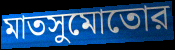
মাতসুমোতোর